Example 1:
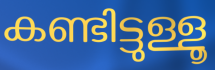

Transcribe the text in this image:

കണ്ടിട്ടുള്ളൂ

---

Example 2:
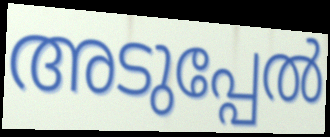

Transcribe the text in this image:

അടുപ്പേൽ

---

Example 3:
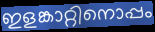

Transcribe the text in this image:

ഇളങ്കാറ്റിനൊപ്പം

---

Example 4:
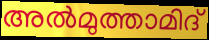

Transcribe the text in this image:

അൽമുത്താമിദ്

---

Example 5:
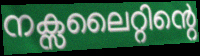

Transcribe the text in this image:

നക്സലൈറ്റിന്റെ